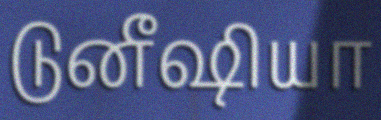
டுனீஷியா